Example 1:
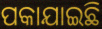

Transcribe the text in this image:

ପକାଯାଇଛି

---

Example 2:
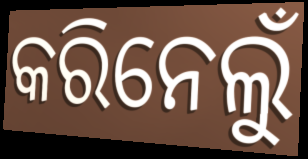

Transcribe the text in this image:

କରିନେଲୁଁ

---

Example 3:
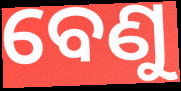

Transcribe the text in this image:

ବେଣୁ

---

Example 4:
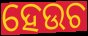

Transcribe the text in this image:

ହେଉଚ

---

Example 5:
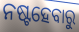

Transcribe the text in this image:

ନଷ୍ଟହେବାରୁ